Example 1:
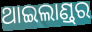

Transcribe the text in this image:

ଥାଇଲାଣ୍ଡ୍‌ର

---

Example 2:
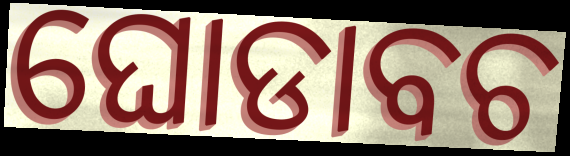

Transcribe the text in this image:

ଘୋଡାବଚ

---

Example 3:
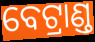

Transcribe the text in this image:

ବେଟ୍ରାଣ୍ଡ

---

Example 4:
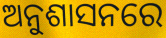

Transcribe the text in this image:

ଅନୁଶାସନରେ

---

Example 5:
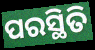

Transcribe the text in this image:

ପରସ୍ଥିତି